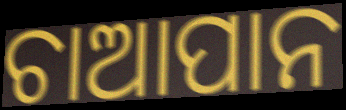
ଚାଆପାନ